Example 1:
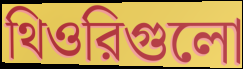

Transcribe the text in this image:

থিওরিগুলো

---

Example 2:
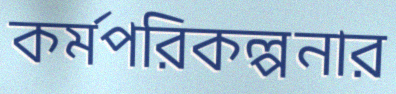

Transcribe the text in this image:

কর্মপরিকল্পনার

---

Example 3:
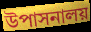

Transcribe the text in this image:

উপাসনালয়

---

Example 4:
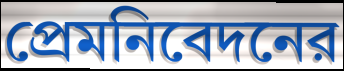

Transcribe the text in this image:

প্রেমনিবেদনের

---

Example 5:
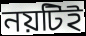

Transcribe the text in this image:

নয়টিই